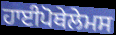
ਹਾਈਪੋਥੇਲੇਮਸ